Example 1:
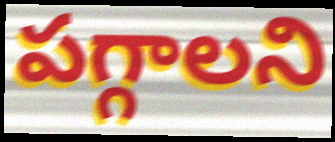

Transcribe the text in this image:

పగ్గాలని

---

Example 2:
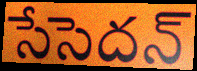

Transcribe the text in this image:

సేసెదన్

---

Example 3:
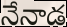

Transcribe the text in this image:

నేనాడ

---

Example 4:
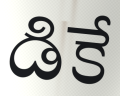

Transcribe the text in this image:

డికే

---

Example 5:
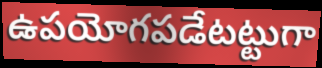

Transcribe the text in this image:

ఉపయోగపడేటట్టుగా